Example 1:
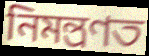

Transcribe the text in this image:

নিমন্ত্ৰণত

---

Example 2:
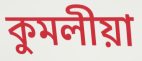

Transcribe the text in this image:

কুমলীয়া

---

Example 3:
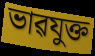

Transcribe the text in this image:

ভাৱযুক্ত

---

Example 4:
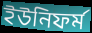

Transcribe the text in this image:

ইউনিফৰ্ম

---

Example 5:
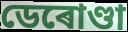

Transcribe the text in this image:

ডেৰোণ্ডা